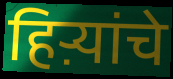
हिऱ्‍यांचे